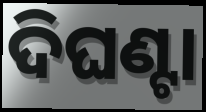
ଦିଘଣ୍ଟା